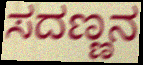
ಸದಣ್ಣನ